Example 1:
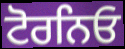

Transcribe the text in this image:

ਟੋਰਨਿਓ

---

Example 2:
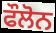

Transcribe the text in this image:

ਫੌਲੋਨ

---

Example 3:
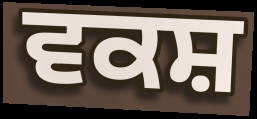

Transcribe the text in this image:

ਵਕਸ਼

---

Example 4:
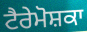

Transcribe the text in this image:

ਟੈਰੇਮੋਸ਼ਕਾ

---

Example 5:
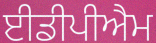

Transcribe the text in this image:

ਈਡੀਪੀਐਮ